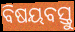
ବିଷୟବସ୍ତୁ